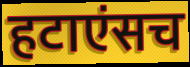
हटाएंसच